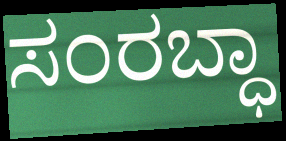
ಸಂರಬ್ಧಾ